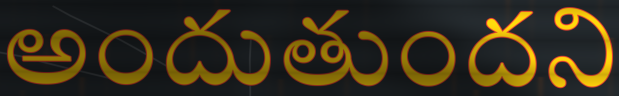
అందుతుందని